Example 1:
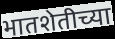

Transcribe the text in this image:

भातशेतीच्या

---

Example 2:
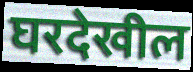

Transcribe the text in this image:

घरदेखील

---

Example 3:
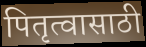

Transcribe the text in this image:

पितृत्वासाठी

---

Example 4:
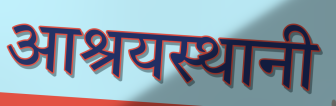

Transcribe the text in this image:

आश्रयस्थानी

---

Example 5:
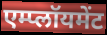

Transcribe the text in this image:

एम्प्लॉयमेंट